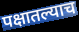
पक्षातल्याच